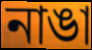
নাঙা